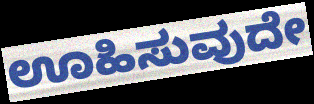
ಊಹಿಸುವುದೇ